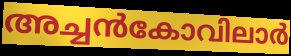
അച്ചൻകോവിലാർ